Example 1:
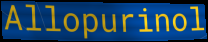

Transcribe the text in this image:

Allopurinol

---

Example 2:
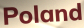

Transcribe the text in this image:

Poland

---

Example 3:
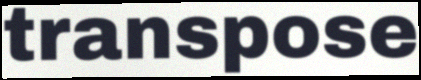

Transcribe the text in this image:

transpose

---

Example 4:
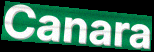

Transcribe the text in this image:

Canara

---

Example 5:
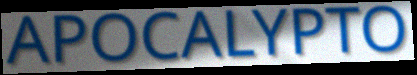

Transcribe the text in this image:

APOCALYPTO